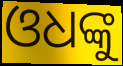
ଓଧଙ୍କୁ